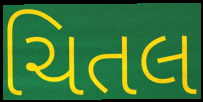
ચિતલ